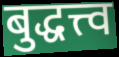
बुद्धत्त्व